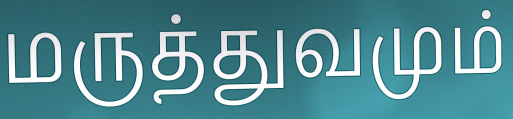
மருத்துவமும்